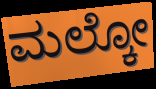
ಮಲ್ಕೋ